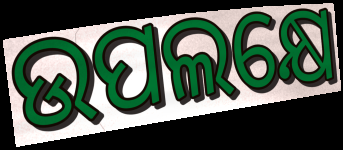
ଉପଲକ୍ଷେ